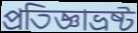
প্রতিজ্ঞাভ্রষ্ট